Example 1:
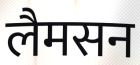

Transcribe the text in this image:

लैमसन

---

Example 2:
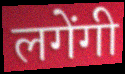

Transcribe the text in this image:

लगेंगी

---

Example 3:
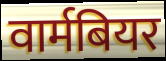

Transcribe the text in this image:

वार्मबियर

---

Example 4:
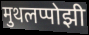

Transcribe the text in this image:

मुथलप्पोझी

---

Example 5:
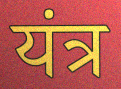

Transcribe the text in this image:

यंत्र